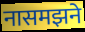
नासमझने